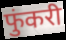
फुंकरी